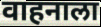
वाहनाला